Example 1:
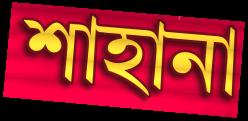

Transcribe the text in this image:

শাহানা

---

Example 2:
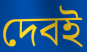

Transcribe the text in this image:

দেবই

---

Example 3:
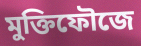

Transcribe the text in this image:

মুক্তিফৌজে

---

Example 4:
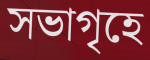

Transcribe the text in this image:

সভাগৃহে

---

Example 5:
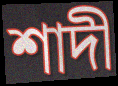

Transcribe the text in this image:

শাদী